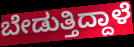
ಬೇಡುತ್ತಿದ್ದಾಳೆ